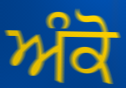
ਅੰਕੋ